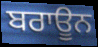
ਬਰਾਊਨ